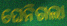
ଘେନିଗଲା